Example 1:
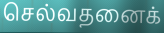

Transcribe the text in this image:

செல்வதனைக்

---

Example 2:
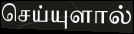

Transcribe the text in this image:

செய்யுளால்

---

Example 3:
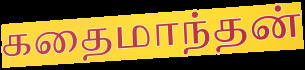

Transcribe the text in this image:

கதைமாந்தன்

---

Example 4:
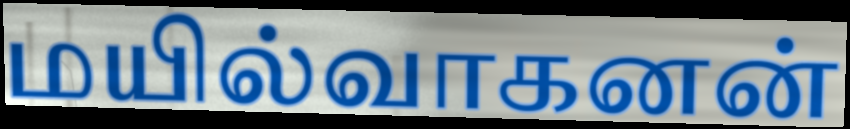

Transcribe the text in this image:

மயில்வாகனன்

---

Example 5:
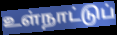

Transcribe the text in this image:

உள்நாட்டுப்